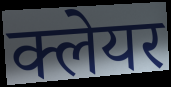
क्लेयर